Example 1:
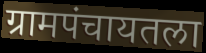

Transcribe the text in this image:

ग्रामपंचायतला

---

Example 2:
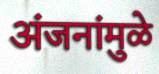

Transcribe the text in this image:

अंजनांमुळे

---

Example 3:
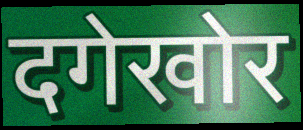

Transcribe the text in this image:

दगेखोर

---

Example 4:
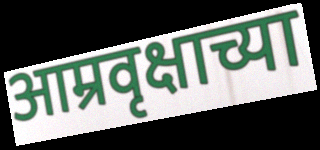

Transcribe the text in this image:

आम्रवृक्षाच्या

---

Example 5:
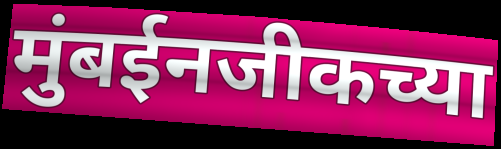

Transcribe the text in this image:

मुंबईनजीकच्या